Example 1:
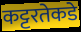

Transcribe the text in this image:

कट्टरतेकडे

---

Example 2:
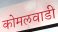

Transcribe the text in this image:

कोमलवाडी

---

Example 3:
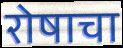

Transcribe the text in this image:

रोषाचा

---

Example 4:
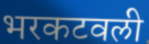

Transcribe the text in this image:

भरकटवली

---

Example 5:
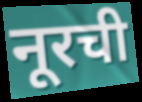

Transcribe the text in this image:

नूरची